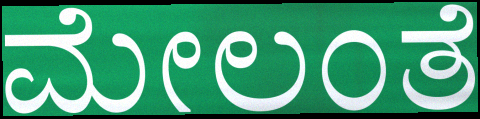
ಮೇಲಂತೆ